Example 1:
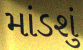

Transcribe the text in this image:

માંડશું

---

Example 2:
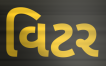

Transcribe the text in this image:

વિટર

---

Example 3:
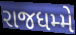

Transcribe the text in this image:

રાજધમ્મે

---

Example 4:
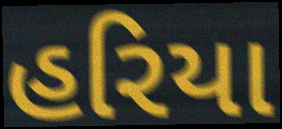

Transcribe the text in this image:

હરિયા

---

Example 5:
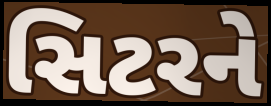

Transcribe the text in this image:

સિટરને